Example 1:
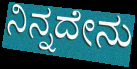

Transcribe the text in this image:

ನಿನ್ನದೇನು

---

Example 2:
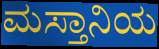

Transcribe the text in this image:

ಮಸ್ತಾನಿಯ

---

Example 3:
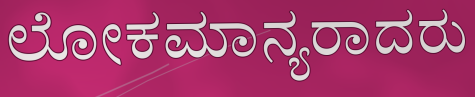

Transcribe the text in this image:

ಲೋಕಮಾನ್ಯರಾದರು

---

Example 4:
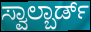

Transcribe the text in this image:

ಸ್ವಾಲ್ಬಾರ್ಡ್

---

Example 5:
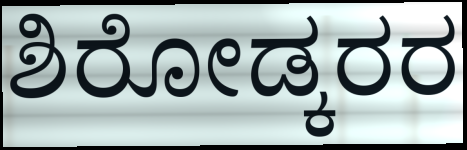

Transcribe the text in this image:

ಶಿರೋಡ್ಕರರ